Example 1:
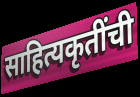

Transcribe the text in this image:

साहित्यकृतींची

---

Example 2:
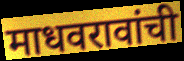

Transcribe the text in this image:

माधवरावांची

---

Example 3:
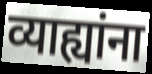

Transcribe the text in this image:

व्याह्यांना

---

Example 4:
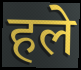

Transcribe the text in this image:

हले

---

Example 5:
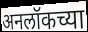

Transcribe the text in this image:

अनलॉकच्या